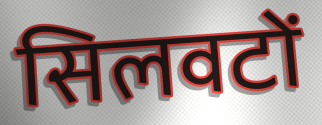
सिलवटों